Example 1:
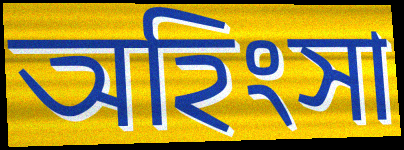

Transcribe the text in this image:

অহিংসা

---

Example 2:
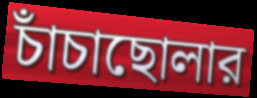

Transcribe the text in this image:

চাঁচাছোলার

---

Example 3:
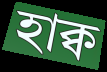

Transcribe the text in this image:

হাক্ব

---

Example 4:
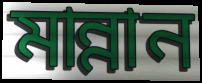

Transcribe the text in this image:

মান্নান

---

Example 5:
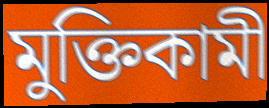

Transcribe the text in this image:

মুক্তিকামী